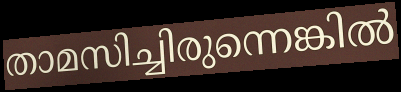
താമസിച്ചിരുന്നെങ്കിൽ